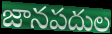
జానపదుల